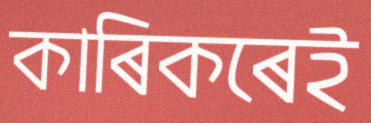
কাৰিকৰেই